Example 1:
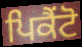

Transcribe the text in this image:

ਪਿਕੈਂਟੋ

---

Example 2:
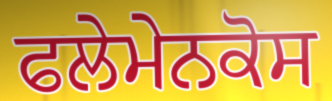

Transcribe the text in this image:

ਫਲੇਮੇਨਕੋਸ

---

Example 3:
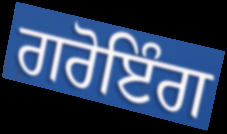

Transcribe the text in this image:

ਗਰੋਇੰਗ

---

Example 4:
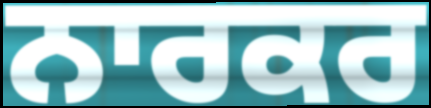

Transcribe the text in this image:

ਨਾਰਕਰ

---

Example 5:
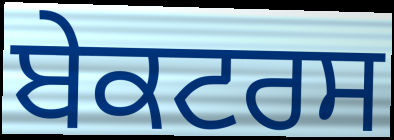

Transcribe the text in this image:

ਬੇਕਟਰਸ